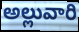
అల్లువారి